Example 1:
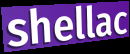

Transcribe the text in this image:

shellac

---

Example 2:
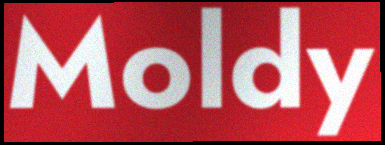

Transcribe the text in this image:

Moldy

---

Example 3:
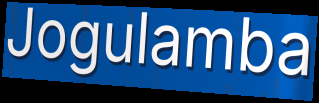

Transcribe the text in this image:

Jogulamba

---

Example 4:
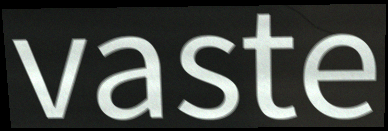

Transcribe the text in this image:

vaste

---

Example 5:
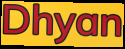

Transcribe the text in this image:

Dhyan